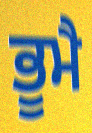
ਭੂਮੈ